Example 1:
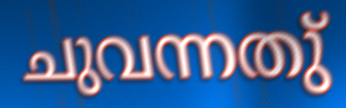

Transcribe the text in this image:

ചുവന്നതു്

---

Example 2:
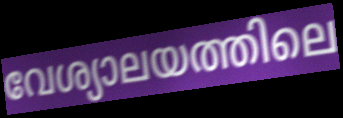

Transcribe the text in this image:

വേശ്യാലയത്തിലെ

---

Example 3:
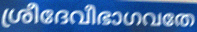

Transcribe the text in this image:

ശ്രീദേവീഭാഗവതേ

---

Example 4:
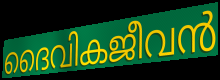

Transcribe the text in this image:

ദൈവികജീവൻ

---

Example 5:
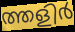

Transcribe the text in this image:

ത്തളിർ